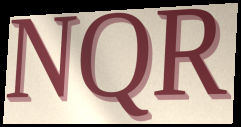
NQR